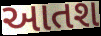
આતશ